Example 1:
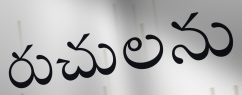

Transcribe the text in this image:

రుచులను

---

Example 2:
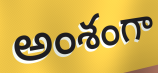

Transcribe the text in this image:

అంశంగా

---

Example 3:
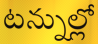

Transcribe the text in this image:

టన్నుల్లో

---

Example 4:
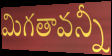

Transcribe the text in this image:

మిగతావన్నీ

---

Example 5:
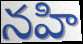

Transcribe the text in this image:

నహి